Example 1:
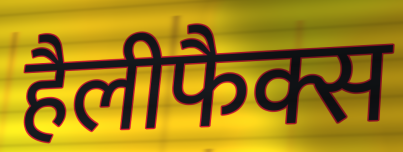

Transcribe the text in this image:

हैलीफैक्स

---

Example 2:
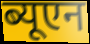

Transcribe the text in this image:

ब्यूएन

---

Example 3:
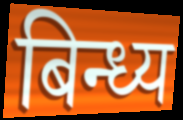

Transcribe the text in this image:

बिन्ध्य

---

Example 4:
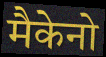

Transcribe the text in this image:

मैकेनो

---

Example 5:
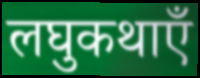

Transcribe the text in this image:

लघुकथाएँ